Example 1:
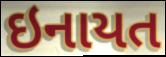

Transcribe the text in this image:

ઇનાયત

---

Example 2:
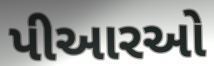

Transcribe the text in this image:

પીઆરઓ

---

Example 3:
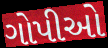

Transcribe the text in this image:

ગોપીઓ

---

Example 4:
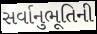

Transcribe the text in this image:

સર્વાનુભૂતિની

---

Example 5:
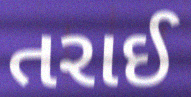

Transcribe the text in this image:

તરાઈ